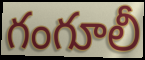
గంగూలీ